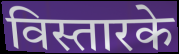
विस्तारके